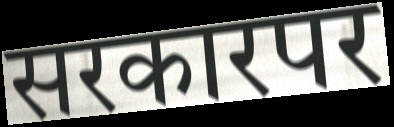
सरकारपर